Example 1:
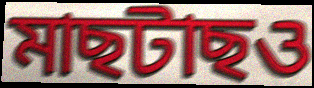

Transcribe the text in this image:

মাছটাছও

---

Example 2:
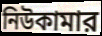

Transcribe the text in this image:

নিউকামার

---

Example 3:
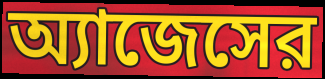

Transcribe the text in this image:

অ্যাজেসের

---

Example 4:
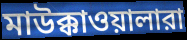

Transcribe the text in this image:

মাউক্কাওয়ালারা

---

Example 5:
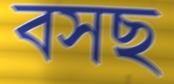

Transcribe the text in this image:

বসছ